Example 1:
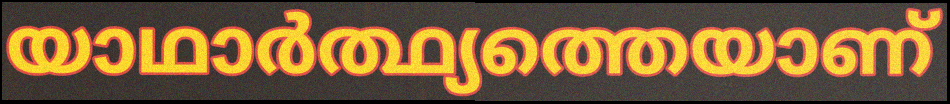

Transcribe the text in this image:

യാഥാർത്ഥ്യത്തെയാണ്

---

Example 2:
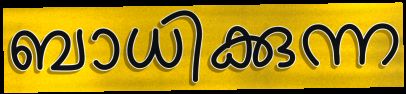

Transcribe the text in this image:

ബാധിക്കുന്ന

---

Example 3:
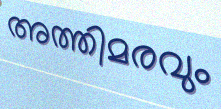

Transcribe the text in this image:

അത്തിമരവും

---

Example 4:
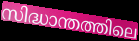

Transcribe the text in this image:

സിദ്ധാന്തത്തിലെ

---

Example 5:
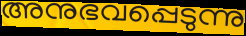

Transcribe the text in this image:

അനുഭവപ്പെടുന്നു